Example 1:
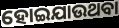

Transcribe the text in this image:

ହୋଇଯାଉଥବା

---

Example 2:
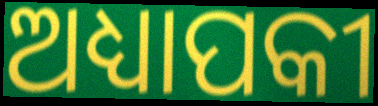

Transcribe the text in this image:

ଅଧ୍ୟାପକୀ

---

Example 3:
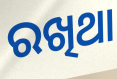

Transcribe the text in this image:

ରଖିଥା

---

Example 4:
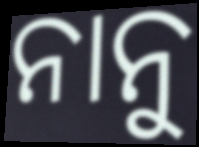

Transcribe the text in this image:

ନାନୁ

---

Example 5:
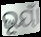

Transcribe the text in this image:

ଭୂୟାଁ